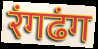
रंगढंग